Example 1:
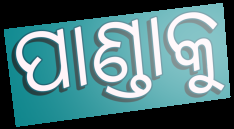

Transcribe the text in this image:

ପାଣ୍ଡାକୁ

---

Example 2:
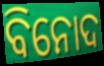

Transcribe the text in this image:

ବିନୋଦ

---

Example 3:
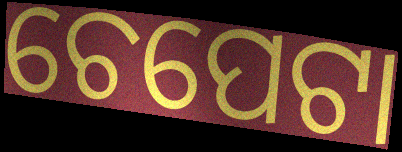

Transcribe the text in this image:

ଚେପେଟା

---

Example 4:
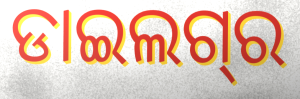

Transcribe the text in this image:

ଡାଇଲଗ୍‌ର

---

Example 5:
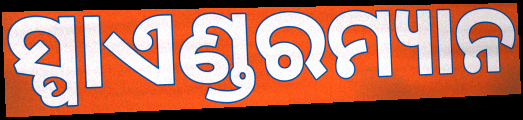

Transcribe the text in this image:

ସ୍ପାଏଣ୍ଡରମ୍ୟାନ